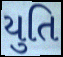
યુતિ